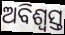
ଅବିଶ୍ୱସ୍ତ